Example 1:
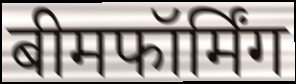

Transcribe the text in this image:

बीमफॉर्मिंग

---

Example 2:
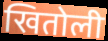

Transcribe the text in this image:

खितोली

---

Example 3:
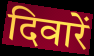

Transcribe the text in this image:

दिवारें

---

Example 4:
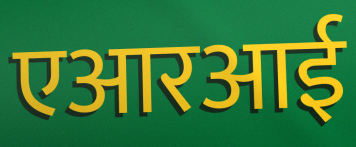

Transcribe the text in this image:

एआरआई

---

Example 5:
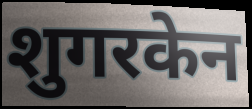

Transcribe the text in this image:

शुगरकेन